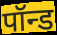
पॉन्ड